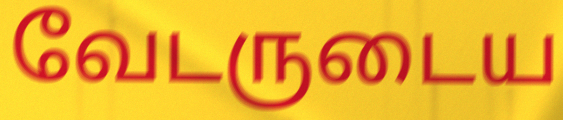
வேடருடைய